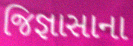
જિજ્ઞાસાના